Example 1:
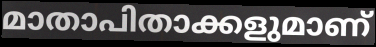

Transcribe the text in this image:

മാതാപിതാക്കളുമാണ്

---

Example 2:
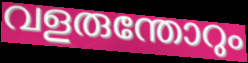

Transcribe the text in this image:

വളരുന്തോറും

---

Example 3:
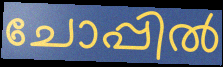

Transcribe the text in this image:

ചോപ്പിൽ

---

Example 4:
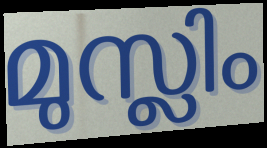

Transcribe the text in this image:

മുസ്ലിം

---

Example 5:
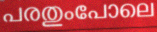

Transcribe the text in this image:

പരതുംപോലെ